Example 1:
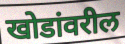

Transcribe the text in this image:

खोडांवरील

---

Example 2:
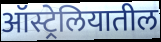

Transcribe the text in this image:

ऑस्ट्रेलियातील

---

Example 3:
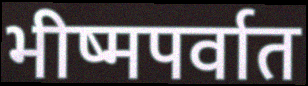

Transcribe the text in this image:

भीष्मपर्वात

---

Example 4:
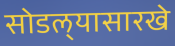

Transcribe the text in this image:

सोडल्यासारखे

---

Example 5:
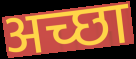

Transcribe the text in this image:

अच्छा